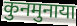
कुनमुनाया